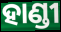
ହାଣ୍ଡୀ